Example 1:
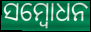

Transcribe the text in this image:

ସମ୍ବୋଧନ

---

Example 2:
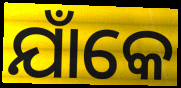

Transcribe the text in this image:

ଯାଁକେ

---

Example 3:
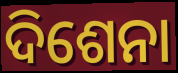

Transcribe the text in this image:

ଦିଶେନା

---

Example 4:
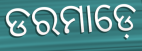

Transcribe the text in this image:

ଡରମାଡ଼େ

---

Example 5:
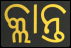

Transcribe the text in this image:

କ୍ଲାନ୍ତ